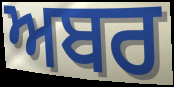
ਅਬਰ